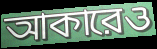
আকারেও